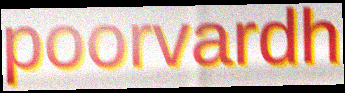
poorvardh